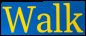
Walk